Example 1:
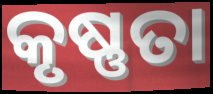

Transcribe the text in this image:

କୃଷ୍ଣତା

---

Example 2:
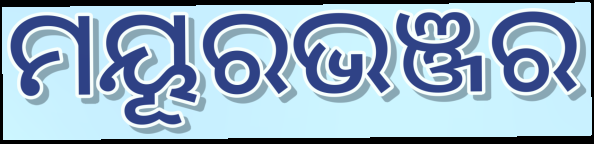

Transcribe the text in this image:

ମୟୂରଭଞ୍ଜର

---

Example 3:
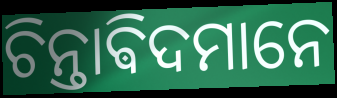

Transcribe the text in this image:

ଚିନ୍ତାଵିଦମାନେ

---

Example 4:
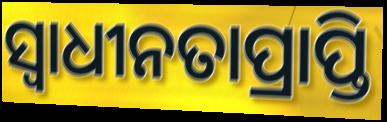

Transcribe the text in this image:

ସ୍ୱାଧୀନତାପ୍ରାପ୍ତି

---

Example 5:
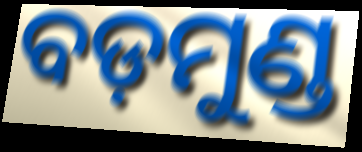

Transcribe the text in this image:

ବଡ଼ମୁଣ୍ଡ